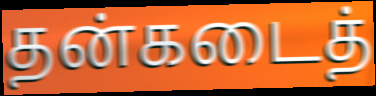
தன்கடைத்